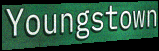
Youngstown